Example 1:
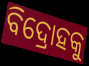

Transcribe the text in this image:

ବିଦ୍ରୋହକୁ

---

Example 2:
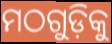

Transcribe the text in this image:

ମଠଗୁଡ଼ିକୁ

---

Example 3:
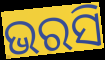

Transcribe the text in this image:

ଭରସି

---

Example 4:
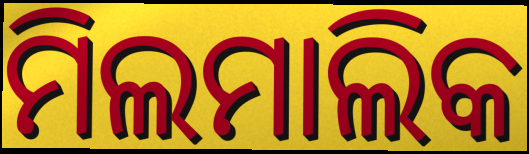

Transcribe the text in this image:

ମିଲମାଲିକ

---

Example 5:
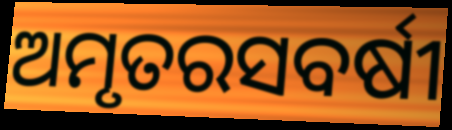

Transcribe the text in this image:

ଅମୃତରସବର୍ଷୀ